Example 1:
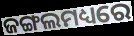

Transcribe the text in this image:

ଜଙ୍ଗଲମଧ୍ୟରେ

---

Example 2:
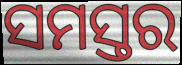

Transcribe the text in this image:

ସମସ୍ତର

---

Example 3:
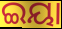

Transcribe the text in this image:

ଇୟା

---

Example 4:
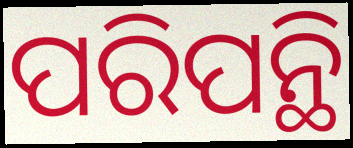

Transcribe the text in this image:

ପରିପନ୍ଥି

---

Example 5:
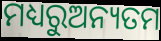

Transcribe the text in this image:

ମଧ୍ୟରୁଅନ୍ୟତମ